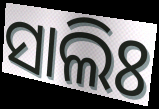
ସାଲିଃ